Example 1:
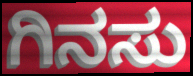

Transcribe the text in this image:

ಗಿನಸು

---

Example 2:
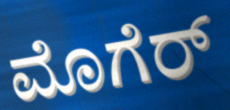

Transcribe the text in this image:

ಮೊಗೆರ್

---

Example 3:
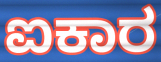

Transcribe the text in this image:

ಐಕಾರ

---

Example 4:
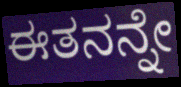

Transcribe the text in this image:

ಈತನನ್ನೇ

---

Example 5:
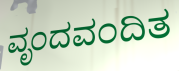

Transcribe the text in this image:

ವೃಂದವಂದಿತ